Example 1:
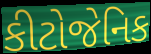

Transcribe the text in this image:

કીટોજેનિક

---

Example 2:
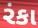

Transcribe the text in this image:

રંકા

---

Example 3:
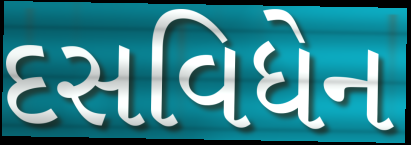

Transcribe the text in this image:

દસવિધેન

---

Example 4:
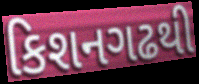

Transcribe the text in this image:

કિશનગઢથી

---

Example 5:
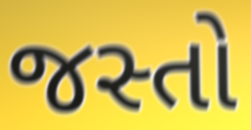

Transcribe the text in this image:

જસ્તો